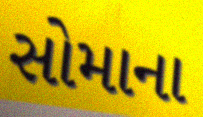
સોમાના